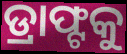
ଡ୍ରାଫ୍ଟକୁ